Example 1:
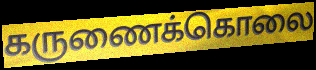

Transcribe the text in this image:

கருணைக்கொலை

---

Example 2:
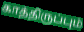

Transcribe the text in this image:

காத்திருப்பும்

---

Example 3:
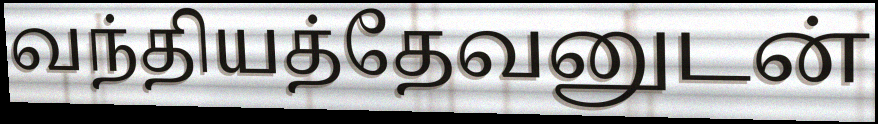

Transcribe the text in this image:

வந்தியத்தேவனுடன்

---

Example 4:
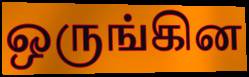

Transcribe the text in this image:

ஒருங்கின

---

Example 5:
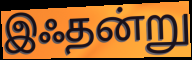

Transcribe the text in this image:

இஃதன்று